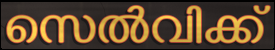
സെൽവിക്ക്